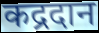
कद्रदान